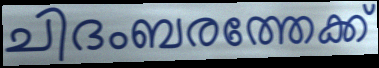
ചിദംബരത്തേക്ക്